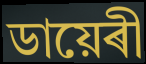
ডায়েৰী